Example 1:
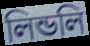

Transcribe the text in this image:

লিন্ডলি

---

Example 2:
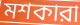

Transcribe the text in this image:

মশকারা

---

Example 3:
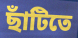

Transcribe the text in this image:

ছাঁটিতে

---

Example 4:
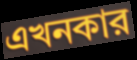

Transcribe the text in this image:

এখনকার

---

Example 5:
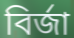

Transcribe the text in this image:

বির্জা